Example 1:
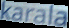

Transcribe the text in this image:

karala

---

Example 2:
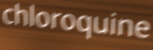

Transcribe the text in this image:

chloroquine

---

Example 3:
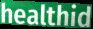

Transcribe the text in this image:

healthid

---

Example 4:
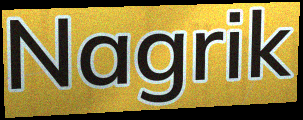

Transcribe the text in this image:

Nagrik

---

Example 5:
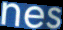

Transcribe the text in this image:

nes